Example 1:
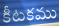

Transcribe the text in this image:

కీటకము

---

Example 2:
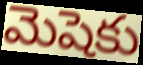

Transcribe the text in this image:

మెషెకు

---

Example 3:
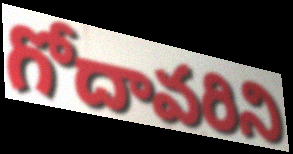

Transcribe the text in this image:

గోదావరిని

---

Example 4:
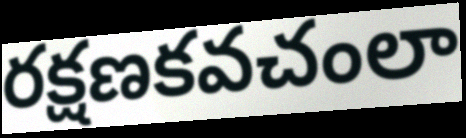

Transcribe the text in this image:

రక్షణకవచంలా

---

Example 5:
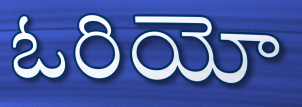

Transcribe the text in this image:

ఓరియో